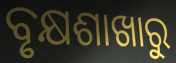
ବୃକ୍ଷଶାଖାରୁ